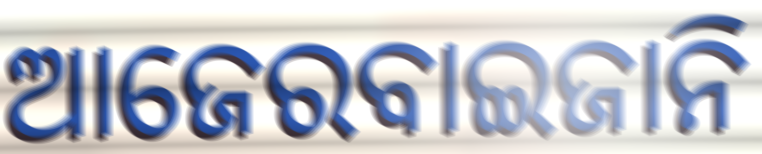
ଆଜେରବାଇଜାନି